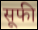
सूफी